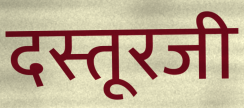
दस्तूरजी